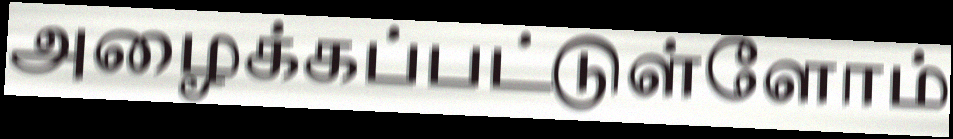
அழைக்கப்பட்டுள்ளோம்